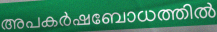
അപകർഷബോധത്തിൽ